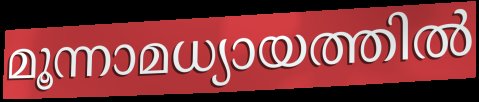
മൂന്നാമധ്യായത്തിൽ